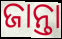
ଜାନ୍ତା